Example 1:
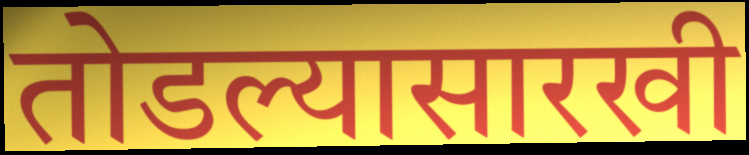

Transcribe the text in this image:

तोडल्यासारखी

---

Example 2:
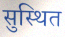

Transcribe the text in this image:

सुस्थित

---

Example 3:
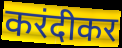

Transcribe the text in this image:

करंदीकर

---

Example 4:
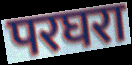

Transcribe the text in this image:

परघरा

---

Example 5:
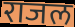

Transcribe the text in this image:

राजल